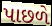
પાછળે